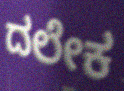
ದಲೇಕ